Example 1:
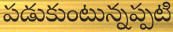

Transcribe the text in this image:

పడుకుంటున్నప్పటి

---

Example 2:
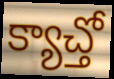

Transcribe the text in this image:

క్యాచ్తో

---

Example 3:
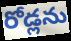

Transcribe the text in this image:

రోడ్లను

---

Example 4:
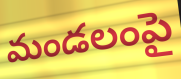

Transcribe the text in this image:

మండలంపై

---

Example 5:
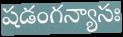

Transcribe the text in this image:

షడంగన్యాసః